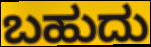
ಬಹುದು